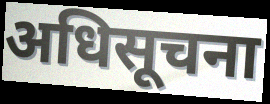
अधिसूचना